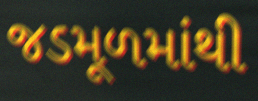
જડમૂળમાંથી